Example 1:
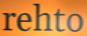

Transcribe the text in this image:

rehto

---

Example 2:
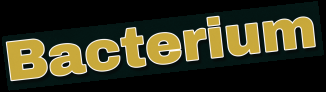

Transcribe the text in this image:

Bacterium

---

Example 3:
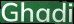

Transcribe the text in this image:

Ghadi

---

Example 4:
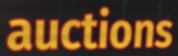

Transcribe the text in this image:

auctions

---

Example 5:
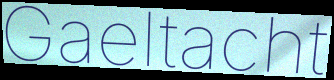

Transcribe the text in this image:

Gaeltacht